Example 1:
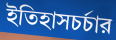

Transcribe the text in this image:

ইতিহাসচর্চার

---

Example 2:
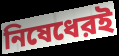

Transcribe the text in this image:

নিষেধেরই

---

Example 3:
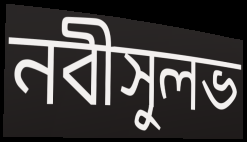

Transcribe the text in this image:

নবীসুলভ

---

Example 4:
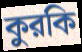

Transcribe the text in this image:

কুরকি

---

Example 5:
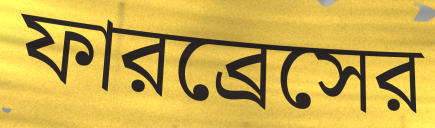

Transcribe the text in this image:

ফারব্রেসের